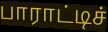
பாராட்டிச்